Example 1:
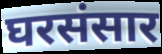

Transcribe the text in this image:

घरसंसार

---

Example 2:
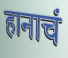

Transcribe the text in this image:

हानाचं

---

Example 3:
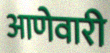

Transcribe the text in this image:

आणेवारी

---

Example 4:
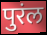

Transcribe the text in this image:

पुरंल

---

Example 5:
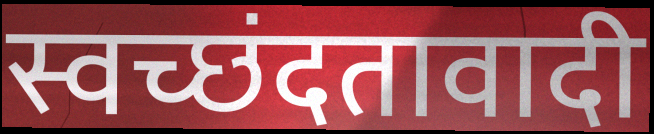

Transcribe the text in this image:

स्वच्छंदतावादी